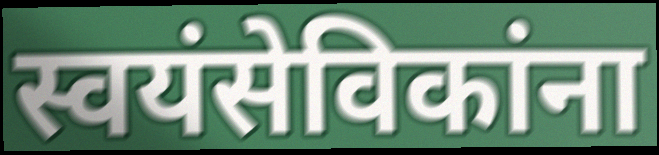
स्वयंसेविकांना